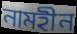
নামহীন